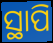
ସ୍ଥାପି